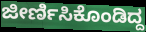
ಜೀರ್ಣಿಸಿಕೊಂಡಿದ್ದ